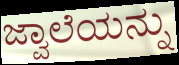
ಜ್ವಾಲೆಯನ್ನು